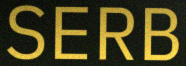
SERB